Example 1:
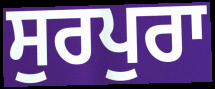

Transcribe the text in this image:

ਸੁਰਪੁਰਾ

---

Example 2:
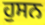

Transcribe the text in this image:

ਹੁਸਨ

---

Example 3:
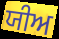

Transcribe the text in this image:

ਯੀਅ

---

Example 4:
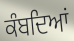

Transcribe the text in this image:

ਕੰਬਦਿਆਂ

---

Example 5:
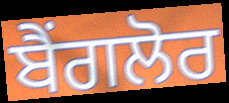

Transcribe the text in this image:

ਬੈਂਗਲੋਰ